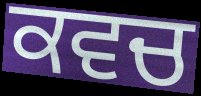
ਕਵਚ